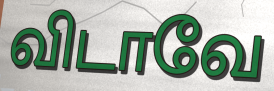
விடாவே